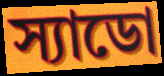
স্যাডো